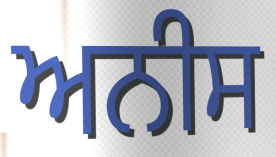
ਅਨੀਸ